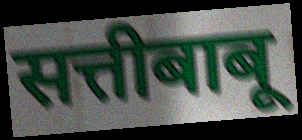
सत्तीबाबू